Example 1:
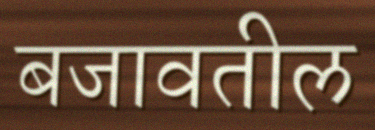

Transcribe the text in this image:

बजावतील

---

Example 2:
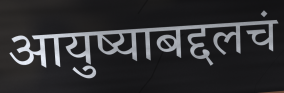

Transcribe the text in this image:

आयुष्याबद्दलचं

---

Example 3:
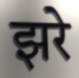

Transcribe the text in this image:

झरे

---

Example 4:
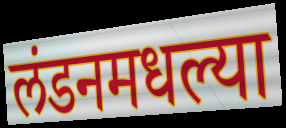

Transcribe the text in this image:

लंडनमधल्या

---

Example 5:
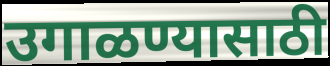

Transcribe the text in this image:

उगाळण्यासाठी